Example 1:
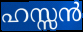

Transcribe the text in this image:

ഹസ്സൻ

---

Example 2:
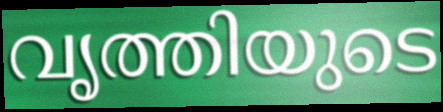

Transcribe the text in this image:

വൃത്തിയുടെ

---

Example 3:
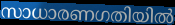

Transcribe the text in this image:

സാധാരണഗതിയിൽ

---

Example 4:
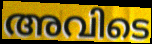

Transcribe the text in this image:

അവിടെ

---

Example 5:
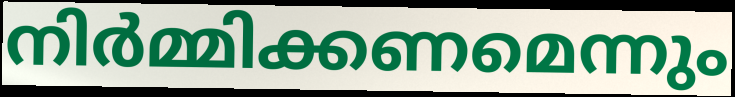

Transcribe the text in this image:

നിർമ്മിക്കണമെന്നും